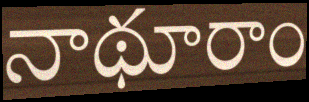
నాథూరాం